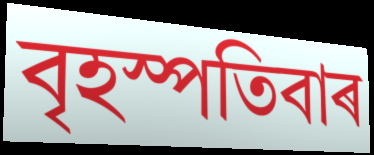
বৃহস্পতিবাৰ